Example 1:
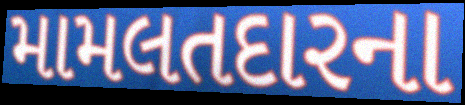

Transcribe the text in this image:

મામલતદારના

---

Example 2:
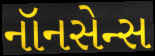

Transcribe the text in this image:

નૉનસેન્સ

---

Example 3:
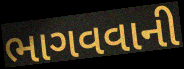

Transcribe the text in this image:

ભાગવવાની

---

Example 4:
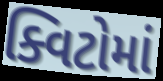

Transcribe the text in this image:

ક્વિટોમાં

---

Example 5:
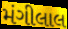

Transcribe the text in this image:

મંગીલાલ